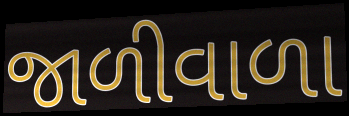
જાળીવાળા